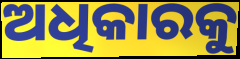
ଅଧିକାରକୁ